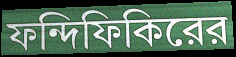
ফন্দিফিকিরের